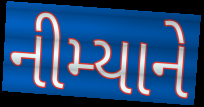
નીમ્યાને